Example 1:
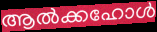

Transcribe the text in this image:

ആൽക്കഹോൾ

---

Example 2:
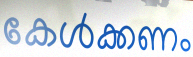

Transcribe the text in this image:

കേൾക്കണം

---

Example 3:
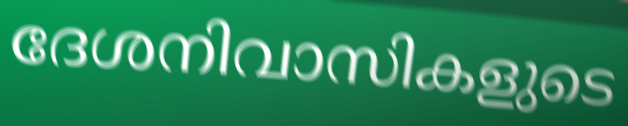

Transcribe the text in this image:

ദേശനിവാസികളുടെ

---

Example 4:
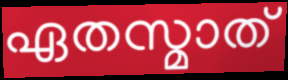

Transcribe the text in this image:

ഏതസ്മാത്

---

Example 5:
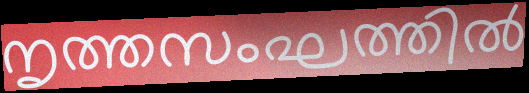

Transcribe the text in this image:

നൃത്തസംഘത്തിൽ